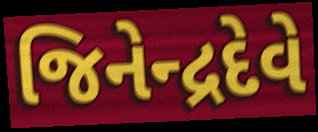
જિનેન્દ્રદેવે